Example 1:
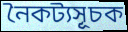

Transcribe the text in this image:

নৈকট্যসূচক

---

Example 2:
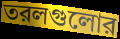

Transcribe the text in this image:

তরলগুলোর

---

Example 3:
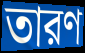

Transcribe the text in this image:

তারণ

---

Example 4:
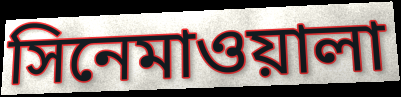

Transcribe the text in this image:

সিনেমাওয়ালা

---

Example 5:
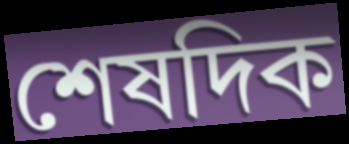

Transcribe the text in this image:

শেষদিক